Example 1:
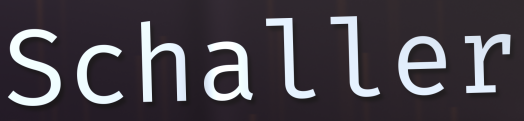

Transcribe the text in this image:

Schaller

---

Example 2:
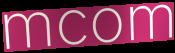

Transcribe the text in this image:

mcom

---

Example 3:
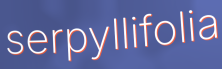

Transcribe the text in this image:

serpyllifolia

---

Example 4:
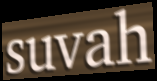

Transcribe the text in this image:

suvah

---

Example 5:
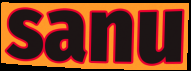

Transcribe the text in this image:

sanu